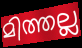
മിത്തല്ല